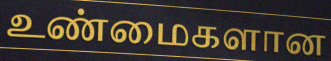
உண்மைகளான